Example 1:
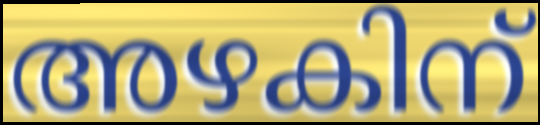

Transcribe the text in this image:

അഴകിന്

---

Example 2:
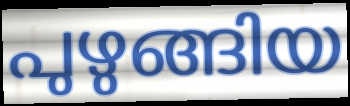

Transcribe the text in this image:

പുഴുങ്ങിയ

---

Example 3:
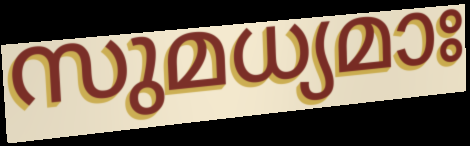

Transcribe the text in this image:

സുമധ്യമാഃ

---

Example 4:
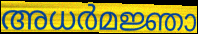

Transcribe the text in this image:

അധർമജ്ഞാ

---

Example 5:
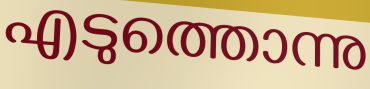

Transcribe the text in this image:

എടുത്തൊന്നു